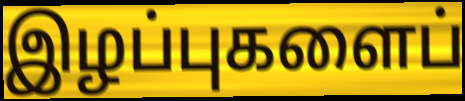
இழப்புகளைப்